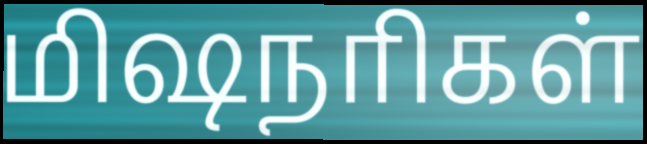
மிஷநரிகள்